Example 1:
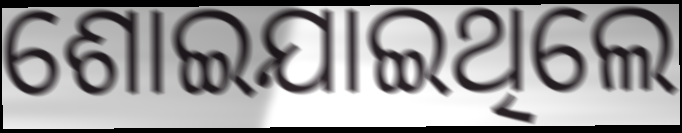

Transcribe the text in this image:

ଶୋଇଯାଇଥିଲେ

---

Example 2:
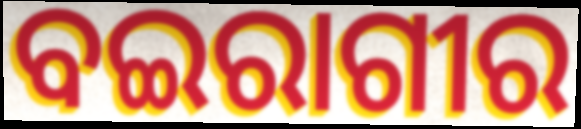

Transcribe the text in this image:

ବଇରାଗୀର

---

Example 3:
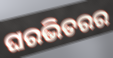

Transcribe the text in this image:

ଘରଭିତରର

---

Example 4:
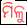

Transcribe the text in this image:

ମିଳୁ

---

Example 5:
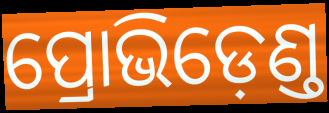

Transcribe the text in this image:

ପ୍ରୋଭିଡ଼େଣ୍ଡ